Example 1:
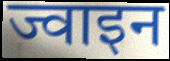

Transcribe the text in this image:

ज्‍वाइन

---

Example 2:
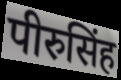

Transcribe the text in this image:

पीरुसिंह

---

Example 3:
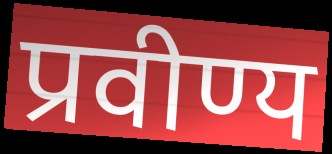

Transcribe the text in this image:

प्रवीण्य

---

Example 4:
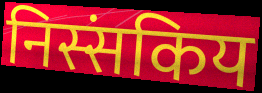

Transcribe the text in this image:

निस्संकिय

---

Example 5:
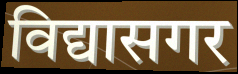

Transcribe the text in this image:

विद्यासगर